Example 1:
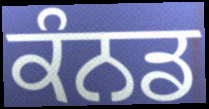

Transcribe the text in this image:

ਕੰਨਡ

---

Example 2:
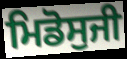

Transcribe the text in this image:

ਮਿਡੋਸੁਜੀ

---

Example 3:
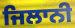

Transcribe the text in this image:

ਜਿਲਾਨੀ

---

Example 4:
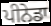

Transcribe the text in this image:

ਪੀਨੇਡਾ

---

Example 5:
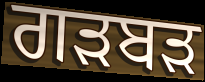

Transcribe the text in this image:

ਗੜਬੜ